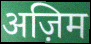
अज़िम